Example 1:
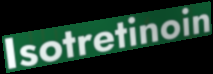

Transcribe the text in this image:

Isotretinoin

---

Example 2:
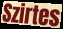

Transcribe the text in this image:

Szirtes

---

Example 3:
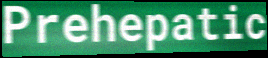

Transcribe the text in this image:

Prehepatic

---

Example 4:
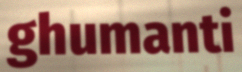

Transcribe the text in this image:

ghumanti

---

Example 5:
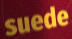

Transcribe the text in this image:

suede